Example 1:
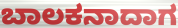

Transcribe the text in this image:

ಬಾಲಕನಾದಾಗ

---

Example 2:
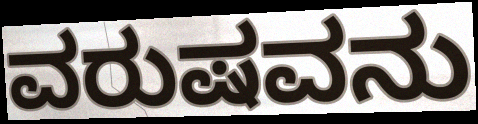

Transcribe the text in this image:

ವರುಷವನು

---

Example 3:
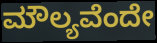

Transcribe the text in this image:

ಮೌಲ್ಯವೆಂದೇ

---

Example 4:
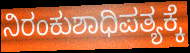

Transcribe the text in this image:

ನಿರಂಕುಶಾಧಿಪತ್ಯಕ್ಕೆ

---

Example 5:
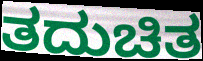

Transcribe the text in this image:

ತದುಚಿತ